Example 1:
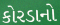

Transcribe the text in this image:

કોરડાનો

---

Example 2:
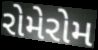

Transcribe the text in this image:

રોમેરોમ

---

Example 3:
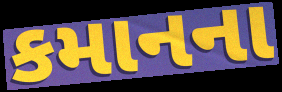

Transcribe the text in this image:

કમાનના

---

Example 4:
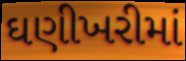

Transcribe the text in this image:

ઘણીખરીમાં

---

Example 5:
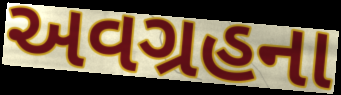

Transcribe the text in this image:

અવગ્રહના